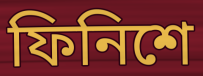
ফিনিশে